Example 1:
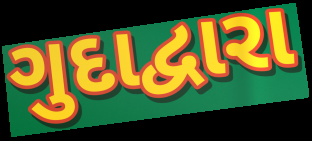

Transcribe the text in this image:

ગુદાદ્વારા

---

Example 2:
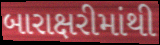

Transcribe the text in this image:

બારાક્ષરીમાંથી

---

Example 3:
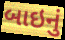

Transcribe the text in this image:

બાઇનું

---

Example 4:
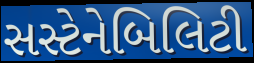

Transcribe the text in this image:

સસ્ટેનેબિલિટી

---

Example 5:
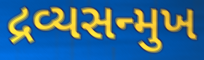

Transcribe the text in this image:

દ્રવ્યસન્મુખ